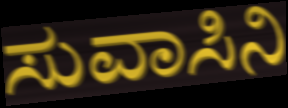
ಸುವಾಸಿನಿ